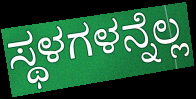
ಸ್ಥಳಗಳನ್ನೆಲ್ಲ